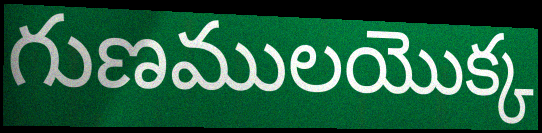
గుణములయొక్క